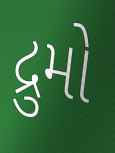
દ્રુમો